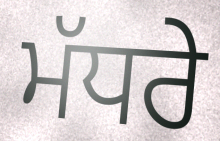
ਮੱਧਰੇ